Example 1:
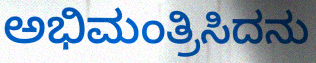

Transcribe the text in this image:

ಅಭಿಮಂತ್ರಿಸಿದನು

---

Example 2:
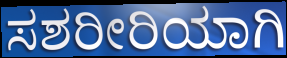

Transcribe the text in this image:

ಸಶರೀರಿಯಾಗಿ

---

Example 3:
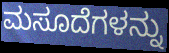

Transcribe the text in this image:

ಮಸೂದೆಗಳನ್ನು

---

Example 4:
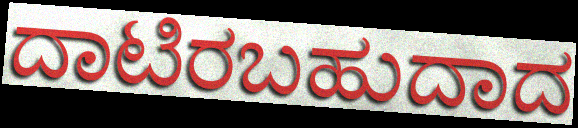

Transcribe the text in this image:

ದಾಟಿರಬಹುದಾದ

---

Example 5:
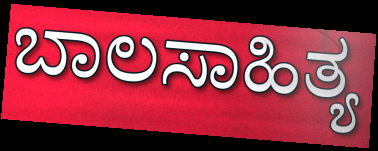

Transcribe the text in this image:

ಬಾಲಸಾಹಿತ್ಯ